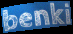
benki